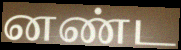
னண்ட